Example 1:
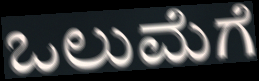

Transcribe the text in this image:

ಒಲುಮೆಗೆ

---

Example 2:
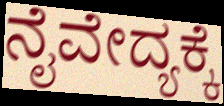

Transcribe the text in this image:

ನೈವೇದ್ಯಕ್ಕೆ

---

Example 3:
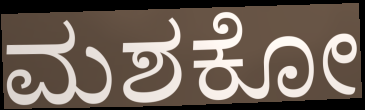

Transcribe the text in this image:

ಮಶಕೋ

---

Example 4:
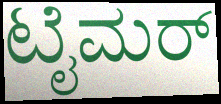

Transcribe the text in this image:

ಟೈಮರ್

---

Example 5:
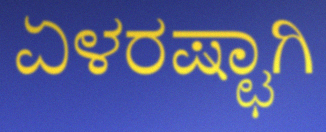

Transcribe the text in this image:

ಏಳರಷ್ಟಾಗಿ